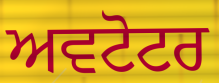
ਅਵਟੋਟਰ